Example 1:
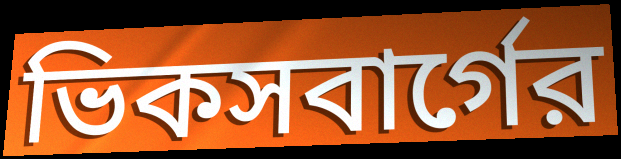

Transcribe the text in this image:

ভিকসবার্গের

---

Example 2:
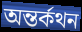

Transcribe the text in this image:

অন্তর্কথন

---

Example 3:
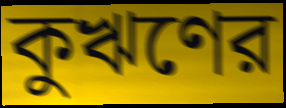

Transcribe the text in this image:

কুঋণের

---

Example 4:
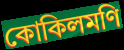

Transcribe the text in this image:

কোকিলমণি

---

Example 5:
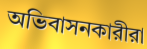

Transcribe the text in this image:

অভিবাসনকারীরা